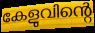
കേളുവിന്റെ